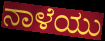
ನಾಳೆಯು